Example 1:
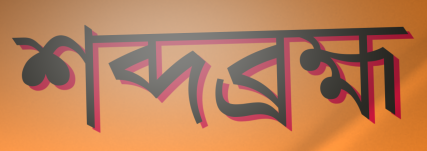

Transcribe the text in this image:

শব্দব্রহ্ম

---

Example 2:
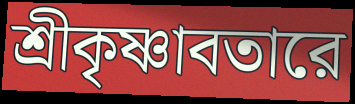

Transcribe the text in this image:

শ্রীকৃষ্ণাবতারে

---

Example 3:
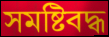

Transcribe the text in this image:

সমষ্টিবদ্ধ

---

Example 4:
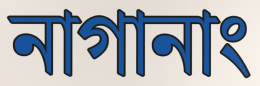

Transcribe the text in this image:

নাগানাং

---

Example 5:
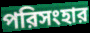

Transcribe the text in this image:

পরিসংহার